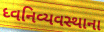
ધ્વનિવ્યવસ્થાના